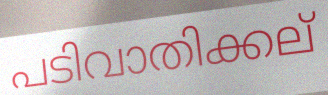
പടിവാതിക്കല്